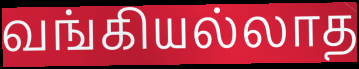
வங்கியல்லாத